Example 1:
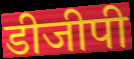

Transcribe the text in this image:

डीजीपी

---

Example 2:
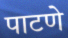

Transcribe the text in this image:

पाटणे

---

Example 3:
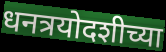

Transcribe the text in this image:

धनत्रयोदशीच्या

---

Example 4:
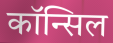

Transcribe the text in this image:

कॉन्सिल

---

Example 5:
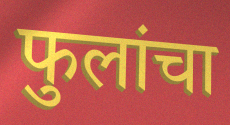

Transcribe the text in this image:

फुलांचा